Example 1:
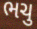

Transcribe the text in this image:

ભચુ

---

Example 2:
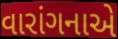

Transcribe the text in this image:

વારાંગનાએ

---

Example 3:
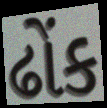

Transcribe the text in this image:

ઢોંક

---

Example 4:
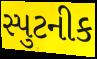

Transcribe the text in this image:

સ્પુટનીક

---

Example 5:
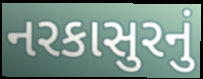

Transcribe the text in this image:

નરકાસુરનું